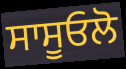
ਸਾਸੂਓਲੋ